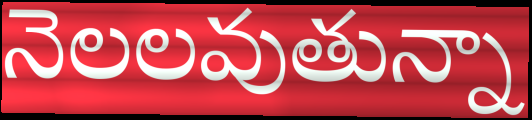
నెలలవుతున్నా